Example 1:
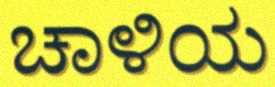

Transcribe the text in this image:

ಚಾಳಿಯ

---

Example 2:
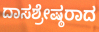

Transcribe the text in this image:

ದಾಸಶ್ರೇಷ್ಠರಾದ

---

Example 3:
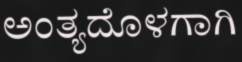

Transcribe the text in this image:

ಅಂತ್ಯದೊಳಗಾಗಿ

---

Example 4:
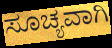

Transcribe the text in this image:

ಸೂಚ್ಯವಾಗಿ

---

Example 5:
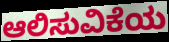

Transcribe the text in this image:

ಆಲಿಸುವಿಕೆಯ